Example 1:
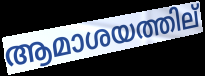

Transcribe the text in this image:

ആമാശയത്തില്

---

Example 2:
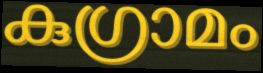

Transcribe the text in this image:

കുഗ്രാമം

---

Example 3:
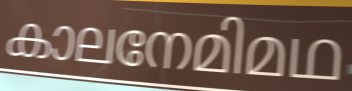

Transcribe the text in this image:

കാലനേമിമഥ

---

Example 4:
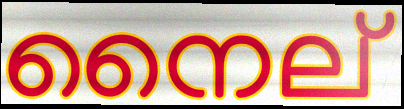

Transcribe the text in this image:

നൈല്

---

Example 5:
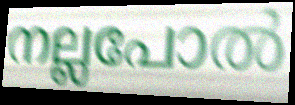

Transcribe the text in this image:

നല്ലപോൽ